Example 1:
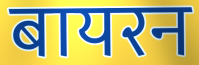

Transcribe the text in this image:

बायरन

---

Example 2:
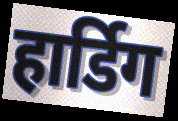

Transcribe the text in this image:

हार्डिग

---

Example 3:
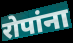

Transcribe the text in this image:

रोपांना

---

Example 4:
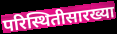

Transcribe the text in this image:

परिस्थितीसारख्या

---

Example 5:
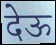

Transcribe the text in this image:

देऊ